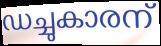
ഡച്ചുകാരന്